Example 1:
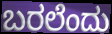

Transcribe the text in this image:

ಬರಲೆಂದು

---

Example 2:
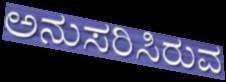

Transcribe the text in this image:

ಅನುಸರಿಸಿರುವ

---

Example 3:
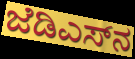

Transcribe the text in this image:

ಜೆಡಿಎಸ್‌ನ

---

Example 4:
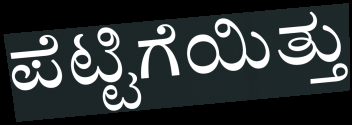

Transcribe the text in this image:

ಪೆಟ್ಟಿಗೆಯಿತ್ತು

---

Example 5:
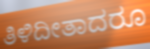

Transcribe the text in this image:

ತಿಳಿದೀತಾದರೂ